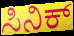
ಸಿನಿಕ್